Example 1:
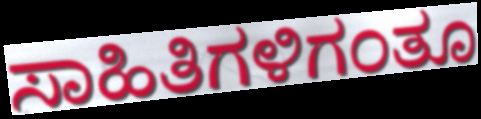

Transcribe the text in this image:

ಸಾಹಿತಿಗಳಿಗಂತೂ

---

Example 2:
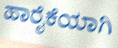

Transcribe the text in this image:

ಹಾರೈಕೆಯಾಗಿ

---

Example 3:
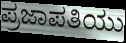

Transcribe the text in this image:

ಪ್ರಜಾಪತಿಯು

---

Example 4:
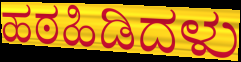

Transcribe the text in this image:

ಹಠಹಿಡಿದಳು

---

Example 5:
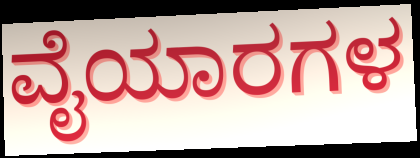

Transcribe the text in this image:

ವೈಯಾರಗಳ